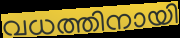
വധത്തിനായി